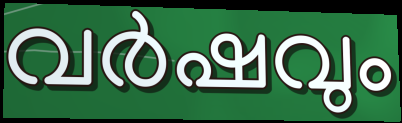
വർഷവും